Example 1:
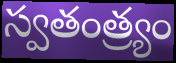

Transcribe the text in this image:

స్వతంత్ర్యం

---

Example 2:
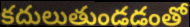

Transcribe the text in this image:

కదులుతుండడంతో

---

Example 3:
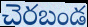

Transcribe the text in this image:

చెరబండ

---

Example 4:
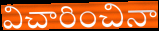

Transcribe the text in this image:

విచారించినా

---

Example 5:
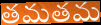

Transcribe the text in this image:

తమతమ